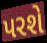
પરશે